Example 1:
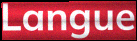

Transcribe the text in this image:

Langue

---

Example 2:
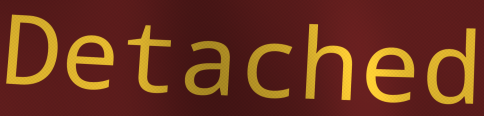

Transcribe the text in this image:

Detached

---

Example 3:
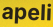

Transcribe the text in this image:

apeli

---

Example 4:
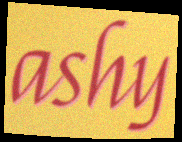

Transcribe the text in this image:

ashy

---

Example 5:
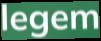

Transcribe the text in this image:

legem